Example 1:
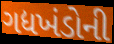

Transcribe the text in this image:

ગદ્યખંડોની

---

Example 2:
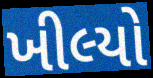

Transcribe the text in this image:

ખીલ્યો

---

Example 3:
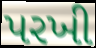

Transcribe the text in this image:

પરખી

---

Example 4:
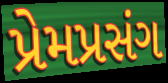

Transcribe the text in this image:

પ્રેમપ્રસંગ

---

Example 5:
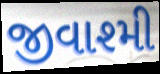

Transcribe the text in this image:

જીવાશ્મી